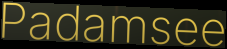
Padamsee